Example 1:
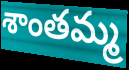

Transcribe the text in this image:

శాంతమ్మ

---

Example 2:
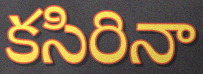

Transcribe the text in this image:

కసిరినా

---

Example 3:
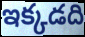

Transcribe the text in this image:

ఇక్కడది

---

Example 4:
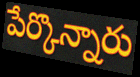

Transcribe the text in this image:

పేర్కొన్నారు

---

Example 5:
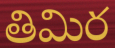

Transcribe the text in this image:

తిమిర